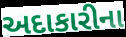
અદાકારીના